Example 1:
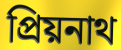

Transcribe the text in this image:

প্রিয়নাথ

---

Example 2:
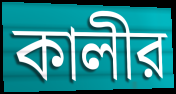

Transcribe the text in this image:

কালীর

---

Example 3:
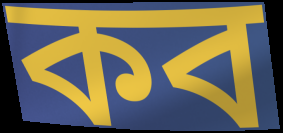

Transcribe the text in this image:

কব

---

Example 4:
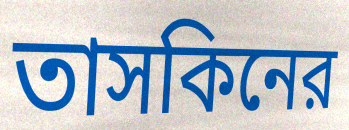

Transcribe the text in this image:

তাসকিনের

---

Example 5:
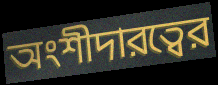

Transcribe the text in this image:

অংশীদারত্বের